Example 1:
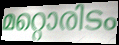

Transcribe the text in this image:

മറ്റൊരിടം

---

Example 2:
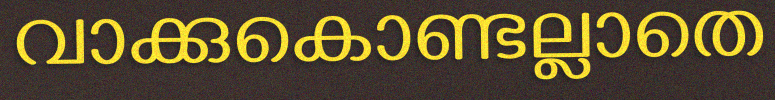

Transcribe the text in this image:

വാക്കുകൊണ്ടല്ലാതെ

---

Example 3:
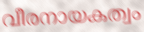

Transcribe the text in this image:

വീരനായകത്വം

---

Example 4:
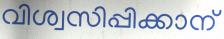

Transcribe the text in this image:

വിശ്വസിപ്പിക്കാന്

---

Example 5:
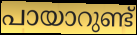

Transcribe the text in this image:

പായാറുണ്ട്